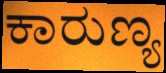
ಕಾರುಣ್ಯ